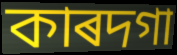
কাৰদগা